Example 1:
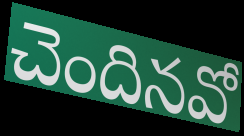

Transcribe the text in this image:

చెందినవో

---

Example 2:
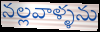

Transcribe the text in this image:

నల్లవాళ్ళను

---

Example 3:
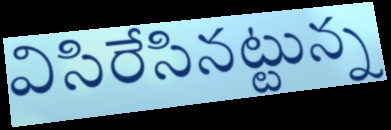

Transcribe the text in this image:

విసిరేసినట్టున్న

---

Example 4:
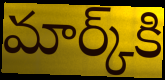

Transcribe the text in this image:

మార్క్‌కి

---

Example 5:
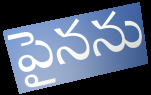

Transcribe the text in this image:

పైనను